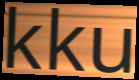
kku